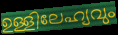
ഉള്ളിലേഹ്യവും